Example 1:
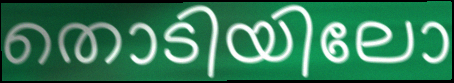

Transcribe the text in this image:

തൊടിയിലോ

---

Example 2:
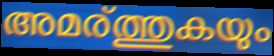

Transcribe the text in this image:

അമര്ത്തുകയും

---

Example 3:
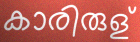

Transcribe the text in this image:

കാരിരുള്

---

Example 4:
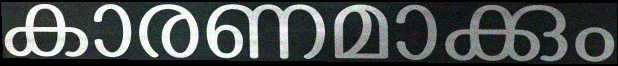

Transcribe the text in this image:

കാരണമാക്കും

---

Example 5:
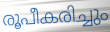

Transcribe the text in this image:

രൂപീകരിച്ചും